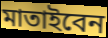
মাতাইবেন